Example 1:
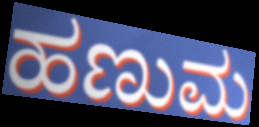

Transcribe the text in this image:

ಹಣುಮ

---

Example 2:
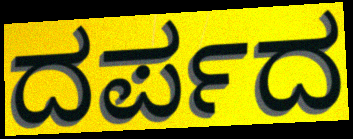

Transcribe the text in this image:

ದರ್ಪದ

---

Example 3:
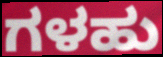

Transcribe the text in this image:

ಗಳಹು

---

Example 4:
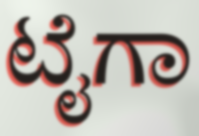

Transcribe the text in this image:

ಟೈಗಾ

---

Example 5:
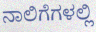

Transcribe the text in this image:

ನಾಲಿಗೆಗಳಲ್ಲಿ